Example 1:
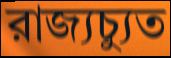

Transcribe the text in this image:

রাজ্যচ্যুত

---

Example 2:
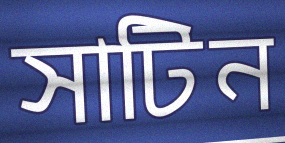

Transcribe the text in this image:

সাটিন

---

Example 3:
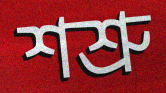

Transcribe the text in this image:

শশ্রু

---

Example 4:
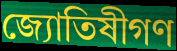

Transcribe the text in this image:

জ্যোতিষীগণ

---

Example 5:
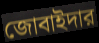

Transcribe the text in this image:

জোবাইদার